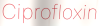
Ciprofloxin